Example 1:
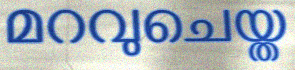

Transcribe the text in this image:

മറവുചെയ്ത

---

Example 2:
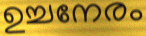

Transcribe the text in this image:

ഉച്ചനേരം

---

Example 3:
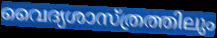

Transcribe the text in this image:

വൈദ്യശാസ്ത്രത്തിലും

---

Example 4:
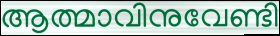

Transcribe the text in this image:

ആത്മാവിനുവേണ്ടി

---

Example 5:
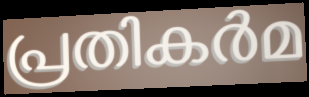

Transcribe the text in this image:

പ്രതികർമ